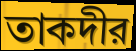
তাকদীর